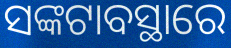
ସଙ୍କଟାବସ୍ଥାରେ